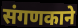
संगणकाने